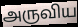
அருவிய